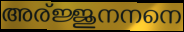
അര്ജ്ജുനനനെ